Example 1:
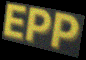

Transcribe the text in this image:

EPP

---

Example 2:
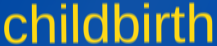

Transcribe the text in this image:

childbirth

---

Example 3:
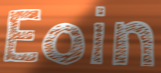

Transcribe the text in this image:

Eoin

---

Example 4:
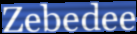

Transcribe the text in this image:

Zebedee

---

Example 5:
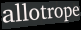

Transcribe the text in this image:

allotrope